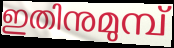
ഇതിനുമുമ്പ്